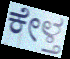
ಕೇಳ್ತ